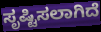
ಸೃಷ್ಟಿಸಲಾಗಿದೆ